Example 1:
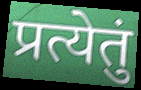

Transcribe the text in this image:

प्रत्येतुं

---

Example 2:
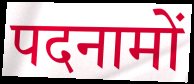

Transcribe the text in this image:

पदनामों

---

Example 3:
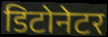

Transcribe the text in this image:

डिटोनेटर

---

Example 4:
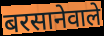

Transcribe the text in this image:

बरसानेवाले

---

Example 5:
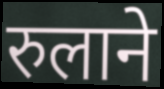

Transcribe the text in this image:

रुलाने